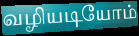
வழியடியோம்